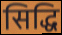
सिद्धि